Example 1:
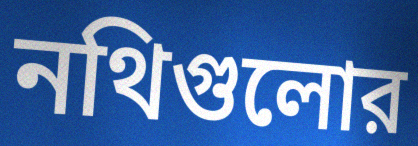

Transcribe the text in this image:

নথিগুলোর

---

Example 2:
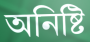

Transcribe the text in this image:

অনিষ্টি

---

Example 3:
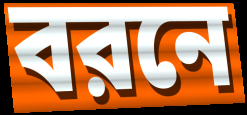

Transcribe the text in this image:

বরনে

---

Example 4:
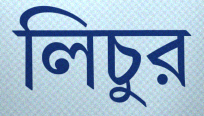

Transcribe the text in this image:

লিচুর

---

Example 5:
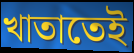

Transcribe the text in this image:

খাতাতেই